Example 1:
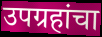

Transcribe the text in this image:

उपग्रहांचा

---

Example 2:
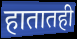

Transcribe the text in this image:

हातातही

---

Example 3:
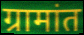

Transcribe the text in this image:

ग्रामांत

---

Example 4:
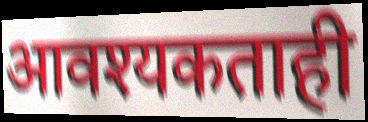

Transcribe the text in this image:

आवश्यकताही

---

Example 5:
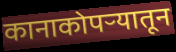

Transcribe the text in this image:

कानाकोपऱ्यातून